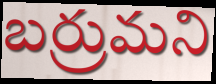
బర్రుమని